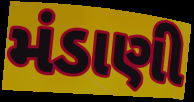
મંડાણી